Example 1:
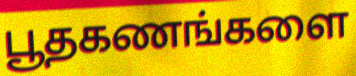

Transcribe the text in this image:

பூதகணங்களை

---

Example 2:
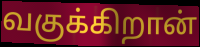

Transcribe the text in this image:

வகுக்கிறான்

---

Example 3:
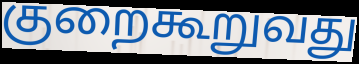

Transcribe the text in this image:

குறைகூறுவது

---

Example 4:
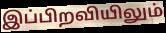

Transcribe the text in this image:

இப்பிறவியிலும்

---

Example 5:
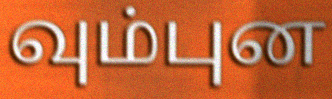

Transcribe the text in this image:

வும்புன